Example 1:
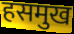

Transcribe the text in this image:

हसमुख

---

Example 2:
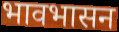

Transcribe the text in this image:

भावभासन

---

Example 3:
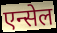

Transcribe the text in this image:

एन्सेल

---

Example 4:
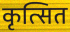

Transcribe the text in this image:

कृत्सित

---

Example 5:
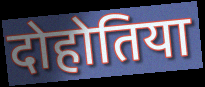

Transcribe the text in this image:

दोहोतिया